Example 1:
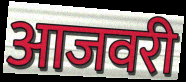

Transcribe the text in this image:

आजवरी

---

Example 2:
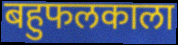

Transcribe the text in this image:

बहुफलकाला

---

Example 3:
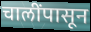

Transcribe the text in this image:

चालींपासून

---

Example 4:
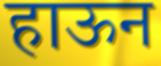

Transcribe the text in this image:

हाऊन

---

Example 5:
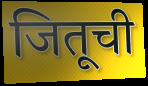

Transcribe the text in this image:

जितूची